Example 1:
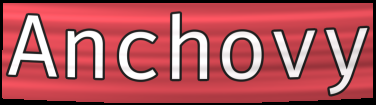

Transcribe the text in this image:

Anchovy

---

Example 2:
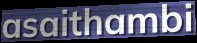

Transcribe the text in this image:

asaithambi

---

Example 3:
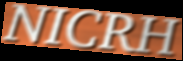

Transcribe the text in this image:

NICRH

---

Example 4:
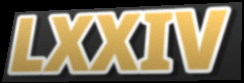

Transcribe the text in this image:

LXXIV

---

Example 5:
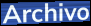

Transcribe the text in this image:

Archivo